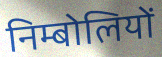
निम्बोलियों